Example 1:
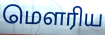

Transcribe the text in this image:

மௌரிய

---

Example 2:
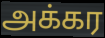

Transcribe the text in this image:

அக்கர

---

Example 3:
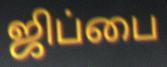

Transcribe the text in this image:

ஜிப்பை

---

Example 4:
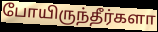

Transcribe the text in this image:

போயிருந்தீர்களா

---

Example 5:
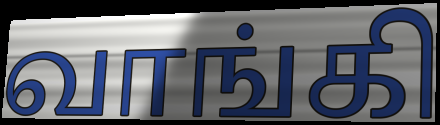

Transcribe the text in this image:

வாங்கி